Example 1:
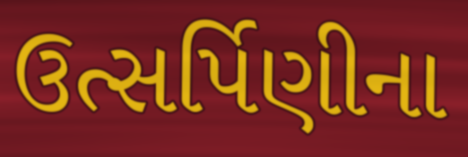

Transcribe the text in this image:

ઉત્સર્પિણીના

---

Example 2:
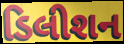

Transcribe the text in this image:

ડિલીશન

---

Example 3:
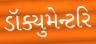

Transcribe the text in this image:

ડૉક્યુમેન્ટરિ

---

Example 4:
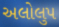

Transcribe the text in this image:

અલોલુપ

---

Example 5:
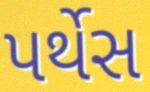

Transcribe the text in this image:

પર્થેસ